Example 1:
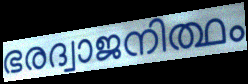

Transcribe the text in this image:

ഭരദ്വാജനിത്ഥം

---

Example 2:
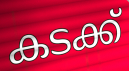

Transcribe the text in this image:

കടക്ക്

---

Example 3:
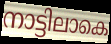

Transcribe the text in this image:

നാട്ടിലാകെ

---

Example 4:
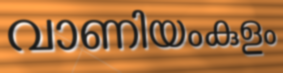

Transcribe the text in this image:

വാണിയംകുളം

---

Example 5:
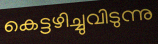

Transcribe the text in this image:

കെട്ടഴിച്ചുവിടുന്നു